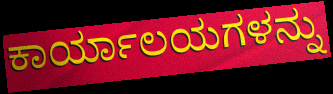
ಕಾರ್ಯಾಲಯಗಳನ್ನು